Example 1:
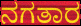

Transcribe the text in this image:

ನಗತಾರ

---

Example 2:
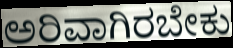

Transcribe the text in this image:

ಅರಿವಾಗಿರಬೇಕು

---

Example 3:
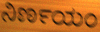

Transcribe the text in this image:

ನಿರ್ಣಯಂ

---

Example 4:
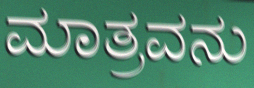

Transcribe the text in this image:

ಮಾತ್ರವನು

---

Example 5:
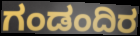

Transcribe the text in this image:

ಗಂಡಂದಿರ